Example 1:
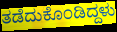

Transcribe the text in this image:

ತಡೆದುಕೊಂಡಿದ್ದಳು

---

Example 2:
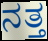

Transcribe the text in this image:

ನತ್ತ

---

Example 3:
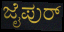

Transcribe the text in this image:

ಜೈಪುರ್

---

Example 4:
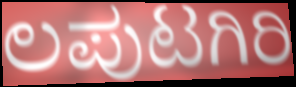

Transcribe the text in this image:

ಲಪುಟಗಿರಿ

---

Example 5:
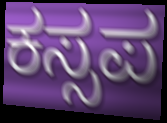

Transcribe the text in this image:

ಕಸ್ಸಪ